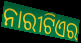
ନାରୀଟିଏର